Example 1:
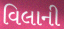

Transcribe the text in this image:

વિલાની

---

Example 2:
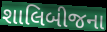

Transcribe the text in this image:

શાલિબીજના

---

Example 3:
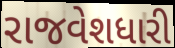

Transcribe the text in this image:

રાજવેશધારી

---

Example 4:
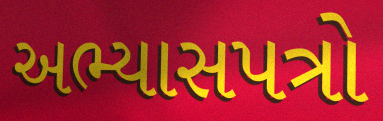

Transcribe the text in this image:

અભ્યાસપત્રો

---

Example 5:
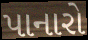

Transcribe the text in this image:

પાનારો